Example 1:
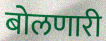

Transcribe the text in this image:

बोलणारी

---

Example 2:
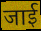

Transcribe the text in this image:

जाई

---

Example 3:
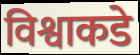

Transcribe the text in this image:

विश्वाकडे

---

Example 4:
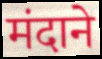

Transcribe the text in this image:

मंदाने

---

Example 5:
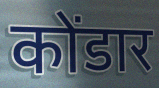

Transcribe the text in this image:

कोंडार